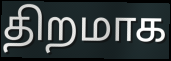
திறமாக